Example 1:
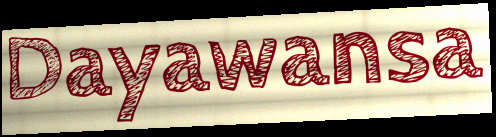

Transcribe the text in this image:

Dayawansa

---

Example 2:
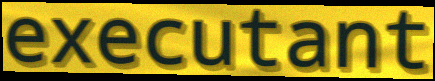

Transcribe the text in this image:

executant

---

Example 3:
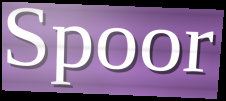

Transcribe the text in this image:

Spoor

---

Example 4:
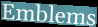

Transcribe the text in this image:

Emblems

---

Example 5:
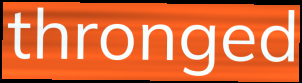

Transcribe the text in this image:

thronged